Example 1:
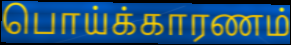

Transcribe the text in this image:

பொய்க்காரணம்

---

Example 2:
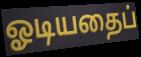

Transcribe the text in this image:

ஓடியதைப்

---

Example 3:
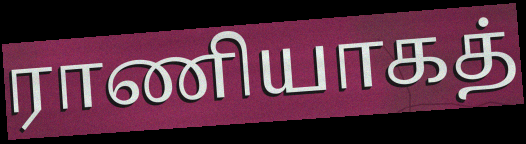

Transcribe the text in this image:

ராணியாகத்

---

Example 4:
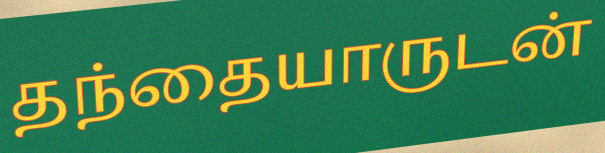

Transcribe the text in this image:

தந்தையாருடன்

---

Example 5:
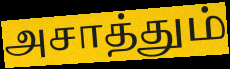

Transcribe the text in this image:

அசாத்தும்